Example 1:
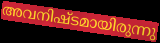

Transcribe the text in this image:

അവനിഷ്ടമായിരുന്നു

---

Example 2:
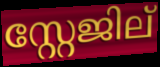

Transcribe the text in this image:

സ്റ്റേജില്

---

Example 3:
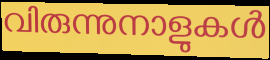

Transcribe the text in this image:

വിരുന്നുനാളുകൾ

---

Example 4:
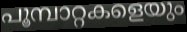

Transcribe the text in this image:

പൂമ്പാറ്റകളെയും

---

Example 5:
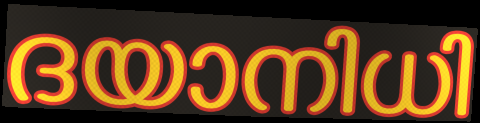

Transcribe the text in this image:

ദയാനിധി